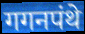
गगनपंथे